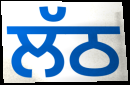
ਲੱਠ